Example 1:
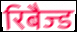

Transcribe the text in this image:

रिबैज्ड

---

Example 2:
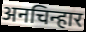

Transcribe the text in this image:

अनचिन्हार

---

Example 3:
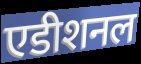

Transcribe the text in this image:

एडीशनल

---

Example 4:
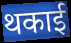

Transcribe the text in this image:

थकाई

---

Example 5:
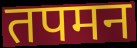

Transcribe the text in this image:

तपमन